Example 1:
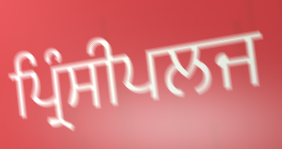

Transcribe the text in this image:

ਪ੍ਰਿੰਸੀਪਲਜ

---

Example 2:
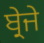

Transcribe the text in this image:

ਬ੍ਰੇਜੇ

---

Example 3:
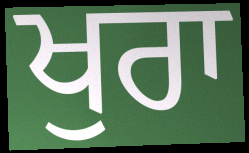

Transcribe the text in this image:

ਖੁਰਾ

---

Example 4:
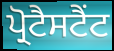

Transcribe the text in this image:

ਪ੍ਰੋਟੈਸਟੈਂਟ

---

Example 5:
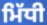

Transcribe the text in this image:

ਮਿੱਧੀ